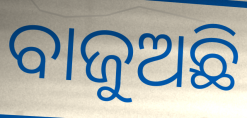
ବାଜୁଅଛି